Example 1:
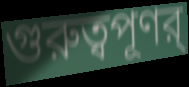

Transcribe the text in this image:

গুরুত্বপূণর্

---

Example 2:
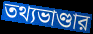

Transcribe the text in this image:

তথ্যভাণ্ডার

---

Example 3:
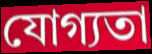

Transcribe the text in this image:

যোগ্যতা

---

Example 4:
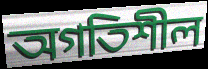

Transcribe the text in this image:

অগতিশীল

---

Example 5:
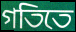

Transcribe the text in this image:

গতিতে